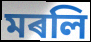
মৰলি